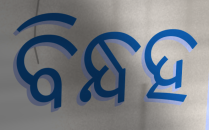
ବିନ୍ଧହ